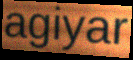
agiyar